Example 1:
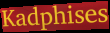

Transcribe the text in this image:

Kadphises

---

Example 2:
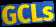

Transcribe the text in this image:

GCLs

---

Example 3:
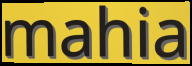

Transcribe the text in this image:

mahia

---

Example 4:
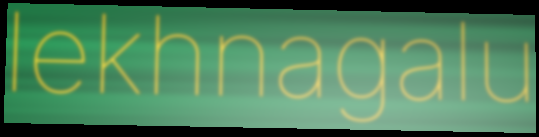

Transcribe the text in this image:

lekhnagalu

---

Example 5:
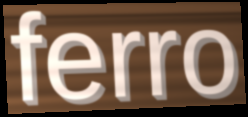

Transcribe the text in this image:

ferro